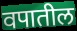
वपातील